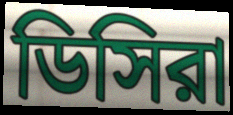
ডিসিরা